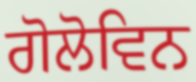
ਗੋਲੋਵਿਨ